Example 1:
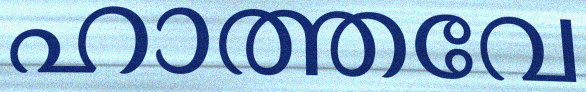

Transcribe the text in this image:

ഹാത്തവേ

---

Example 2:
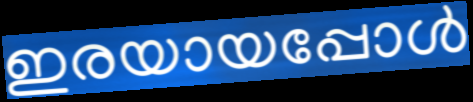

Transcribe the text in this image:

ഇരയായപ്പോൾ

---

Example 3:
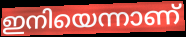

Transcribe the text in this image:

ഇനിയെന്നാണ്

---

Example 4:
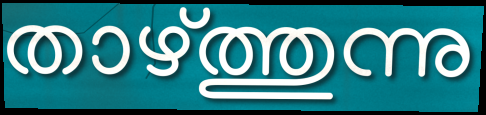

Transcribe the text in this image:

താഴ്ത്തുന്നു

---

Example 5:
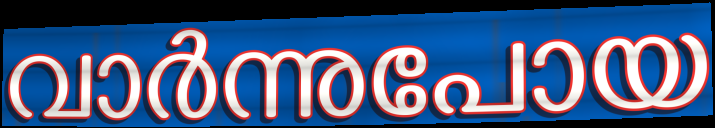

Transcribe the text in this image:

വാർന്നുപോയ